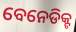
ବେନେଡିକ୍ଟ